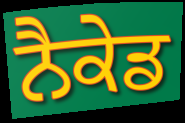
ਨੈਕੇਡ